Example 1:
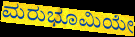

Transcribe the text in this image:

ಮರುಭೂಮಿಯೇ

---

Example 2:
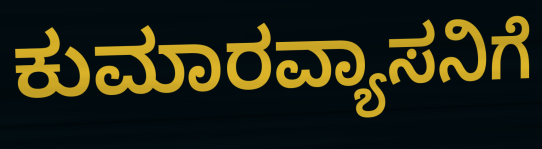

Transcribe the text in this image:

ಕುಮಾರವ್ಯಾಸನಿಗೆ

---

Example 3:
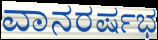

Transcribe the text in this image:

ವಾನರರ್ಷಭ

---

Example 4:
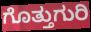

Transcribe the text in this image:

ಗೊತ್ತುಗುರಿ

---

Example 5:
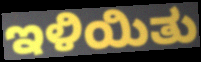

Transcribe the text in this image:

ಇಳಿಯಿತು